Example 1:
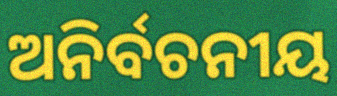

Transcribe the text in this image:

ଅନିର୍ବଚନୀୟ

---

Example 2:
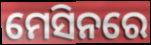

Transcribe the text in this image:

ମେସିନରେ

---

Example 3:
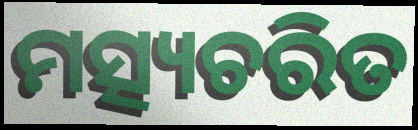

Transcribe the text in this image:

ମତ୍ସ୍ୟଚରିତ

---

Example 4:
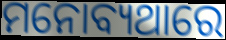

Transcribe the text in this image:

ମନୋବ୍ୟଥାରେ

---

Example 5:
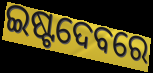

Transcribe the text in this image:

ଇଷ୍ଟଦେବରେ